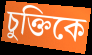
চুক্তিকে